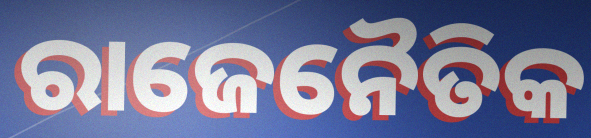
ରାଜେନୈତିକ